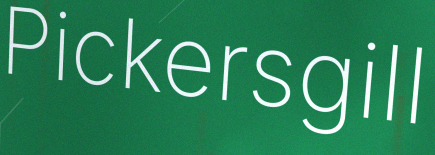
Pickersgill